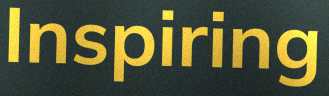
Inspiring